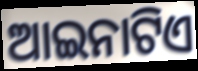
ଆଇନାଟିଏ